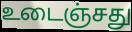
உடைஞ்சது